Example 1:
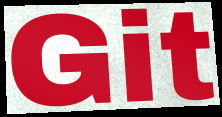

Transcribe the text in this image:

Git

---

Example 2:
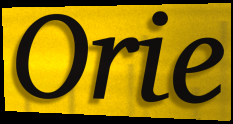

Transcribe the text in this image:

Orie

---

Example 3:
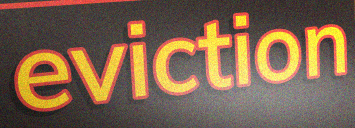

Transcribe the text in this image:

eviction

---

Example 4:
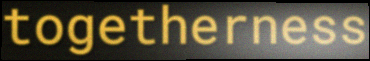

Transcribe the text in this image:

togetherness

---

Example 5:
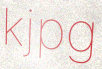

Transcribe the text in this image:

kjpg